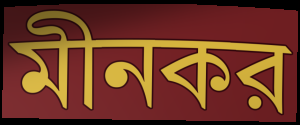
মীনকর